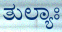
ತುಲ್ಯಾಃ